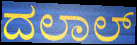
ದಲಾಲ್